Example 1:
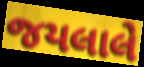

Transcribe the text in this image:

જયલાલે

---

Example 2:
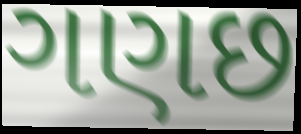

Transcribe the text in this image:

ગણછ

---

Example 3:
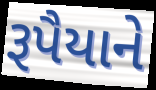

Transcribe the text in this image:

રૂપૈયાને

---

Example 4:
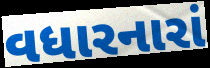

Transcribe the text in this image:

વધારનારાં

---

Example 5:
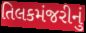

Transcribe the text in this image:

તિલકમંજરીનું